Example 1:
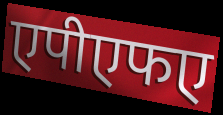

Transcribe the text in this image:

एपीएफए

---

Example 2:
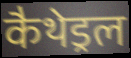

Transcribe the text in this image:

कैथेड्रल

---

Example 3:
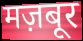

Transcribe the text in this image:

मज़बूर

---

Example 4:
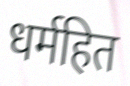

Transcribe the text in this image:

धर्महित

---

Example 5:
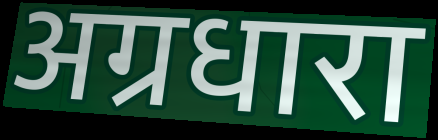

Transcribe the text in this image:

अग्रधारा